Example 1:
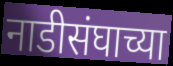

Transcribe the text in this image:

नाडीसंघाच्या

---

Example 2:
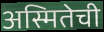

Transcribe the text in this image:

अस्मितेची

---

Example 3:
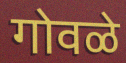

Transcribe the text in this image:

गोवळे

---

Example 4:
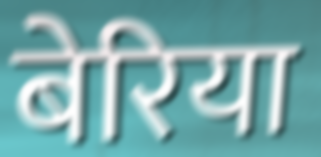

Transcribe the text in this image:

बेरिया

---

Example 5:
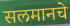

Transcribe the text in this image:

सलमानचे